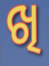
ଖି